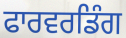
ਫਾਰਵਰਡਿੰਗ